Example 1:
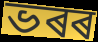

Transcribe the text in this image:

ভৰৰ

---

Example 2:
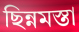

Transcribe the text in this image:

ছিন্নমস্তা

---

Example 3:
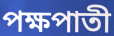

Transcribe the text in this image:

পক্ষপাতী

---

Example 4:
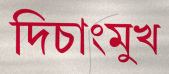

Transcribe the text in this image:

দিচাংমুখ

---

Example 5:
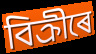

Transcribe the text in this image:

বিক্ৰীৰে